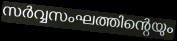
സർവ്വസംഘത്തിന്റെയും